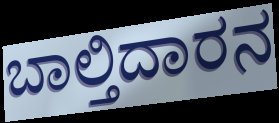
ಬಾಲ್ತಿದಾರನ